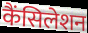
कैंसिलेशन